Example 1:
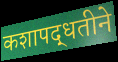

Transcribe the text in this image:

कशापद्धतीने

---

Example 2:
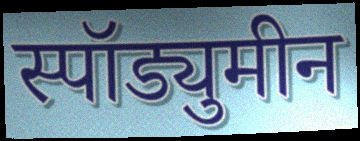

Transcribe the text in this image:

स्पॉड्युमीन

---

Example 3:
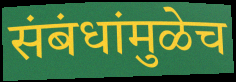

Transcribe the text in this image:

संबंधांमुळेच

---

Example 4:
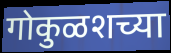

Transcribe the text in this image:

गोकुळशच्या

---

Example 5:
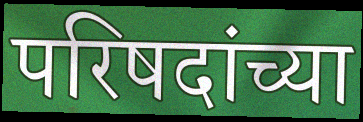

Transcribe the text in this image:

परिषदांच्या